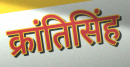
क्रांतिसिंह